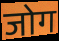
जोग